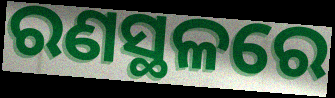
ରଣସ୍ଥଳରେ